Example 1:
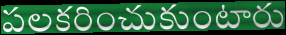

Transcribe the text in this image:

పలకరించుకుంటారు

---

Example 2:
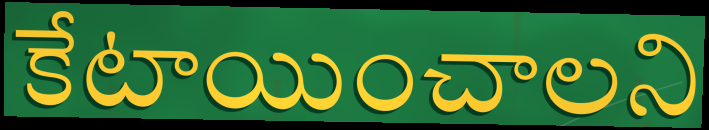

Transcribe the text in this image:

కేటాయించాలని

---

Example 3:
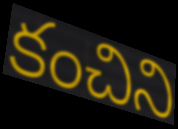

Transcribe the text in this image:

కంచిని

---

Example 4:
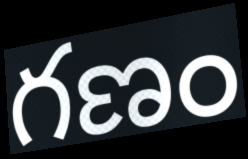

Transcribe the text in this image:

గణం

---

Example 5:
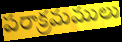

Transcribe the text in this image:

పరాక్రమములు